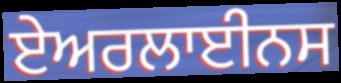
ਏਅਰਲਾਈਨਸ